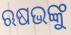
ଋଷଭଙ୍କୁ